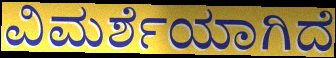
ವಿಮರ್ಶೆಯಾಗಿದೆ